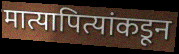
मात्यापित्यांकडून